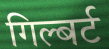
गिल्बर्ट